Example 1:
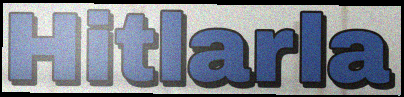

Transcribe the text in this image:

Hitlarla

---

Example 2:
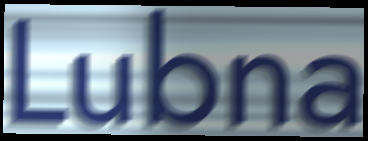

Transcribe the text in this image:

Lubna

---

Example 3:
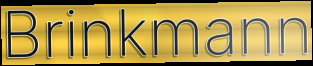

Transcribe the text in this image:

Brinkmann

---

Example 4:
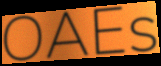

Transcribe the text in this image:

OAEs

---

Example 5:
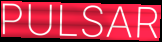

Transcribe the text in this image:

PULSAR